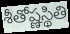
శీతోష్ణస్థితి